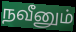
நவீனும்